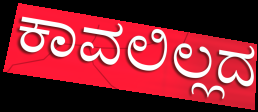
ಕಾವಲಿಲ್ಲದ